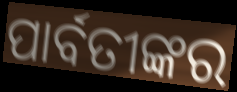
ପାର୍ବତୀଙ୍କର